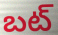
బట్